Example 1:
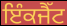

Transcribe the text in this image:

ਇੰਕਜੈੱਟ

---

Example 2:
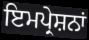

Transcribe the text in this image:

ਇਮਪ੍ਰੇਸ਼ਨਾਂ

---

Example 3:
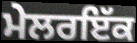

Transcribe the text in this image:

ਮੇਲਰਇੱਕ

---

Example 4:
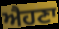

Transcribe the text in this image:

ਐਹਣਾ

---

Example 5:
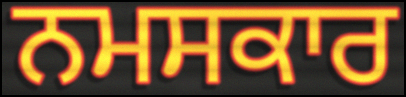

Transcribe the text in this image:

ਨਮਸਕਾਰ